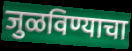
जुळविण्याचा